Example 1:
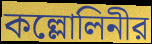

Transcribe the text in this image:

কল্লোলিনীর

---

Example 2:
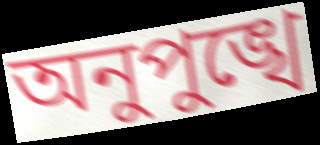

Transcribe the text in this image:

অনুপুঙ্খে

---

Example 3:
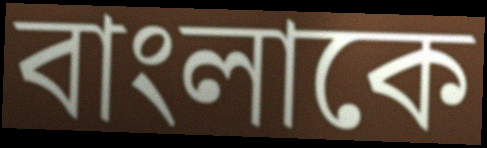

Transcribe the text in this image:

বাংলাকে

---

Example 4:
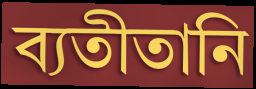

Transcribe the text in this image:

ব্যতীতানি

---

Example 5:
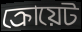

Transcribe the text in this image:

ক্রোয়েট